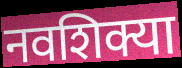
नवशिक्या